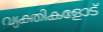
വ്യക്തികളോട്